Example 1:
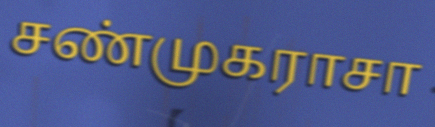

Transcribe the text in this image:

சண்முகராசா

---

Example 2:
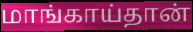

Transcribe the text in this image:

மாங்காய்தான்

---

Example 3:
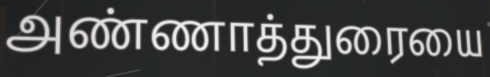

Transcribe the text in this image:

அண்ணாத்துரையை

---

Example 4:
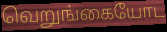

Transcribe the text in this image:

வெறுங்கையோட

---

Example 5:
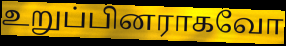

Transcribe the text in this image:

உறுப்பினராகவோ